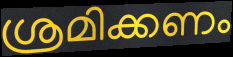
ശ്രമിക്കണം